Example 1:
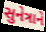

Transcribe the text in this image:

સુનેત્રાને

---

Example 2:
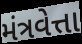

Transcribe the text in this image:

મંત્રવેત્તા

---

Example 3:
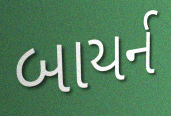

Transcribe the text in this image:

બાયર્ન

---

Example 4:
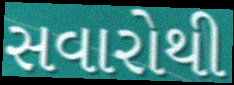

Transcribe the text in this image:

સવારોથી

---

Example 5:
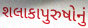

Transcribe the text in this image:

શલાકાપુરુષોનું